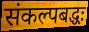
संकल्पबद्धः